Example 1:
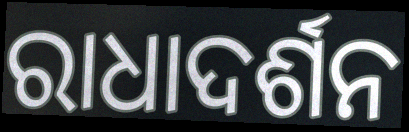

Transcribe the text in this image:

ରାଧାଦର୍ଶନ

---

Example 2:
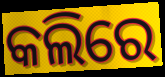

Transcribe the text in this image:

କଲିରେ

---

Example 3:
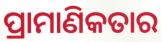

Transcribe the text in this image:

ପ୍ରାମାଣିକତାର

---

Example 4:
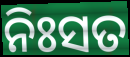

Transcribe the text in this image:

ନିଃସତ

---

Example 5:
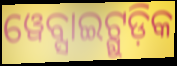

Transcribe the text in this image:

ୱେବ୍ସାଇଟ୍ଗୁଡ଼ିକ